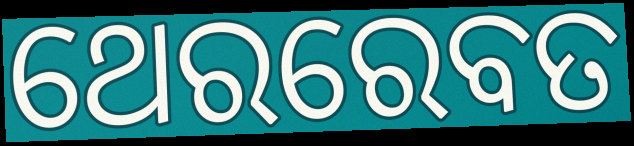
ଥେରରେବତ